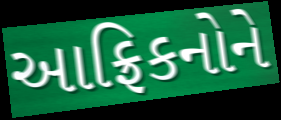
આફ્રિકનોને